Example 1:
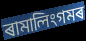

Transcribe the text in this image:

ৰামালিংগমৰ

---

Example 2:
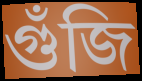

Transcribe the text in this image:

গুঁজি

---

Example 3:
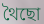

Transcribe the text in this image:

থৈছো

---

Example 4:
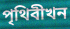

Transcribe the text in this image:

পৃথিবীখন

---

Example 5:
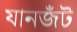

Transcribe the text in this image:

যানজঁট